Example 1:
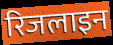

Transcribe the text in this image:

रिजलाइन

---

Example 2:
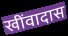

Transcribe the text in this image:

खींवादास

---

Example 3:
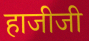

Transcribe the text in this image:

हाजीजी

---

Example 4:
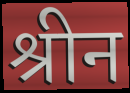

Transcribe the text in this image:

श्रीन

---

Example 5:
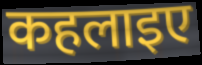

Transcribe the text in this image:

कहलाइए